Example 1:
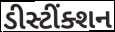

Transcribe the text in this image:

ડીસ્ટીંક્શન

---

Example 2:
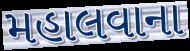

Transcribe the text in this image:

મહાલવાના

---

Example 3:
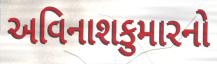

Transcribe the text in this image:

અવિનાશકુમારનો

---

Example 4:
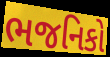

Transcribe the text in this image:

ભજનિકો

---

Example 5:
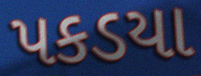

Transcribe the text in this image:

પકડયા